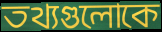
তথ্যগুলোকে